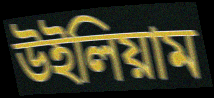
উইলিয়াম